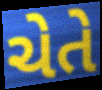
ચેતે